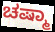
ಚಷ್ಮಾ